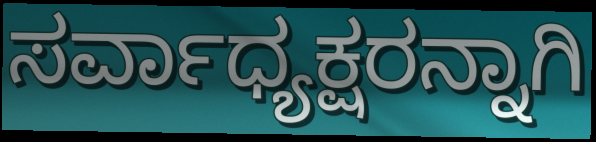
ಸರ್ವಾಧ್ಯಕ್ಷರನ್ನಾಗಿ